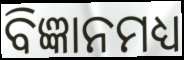
ବିଜ୍ଞାନମଧ୍ୟ